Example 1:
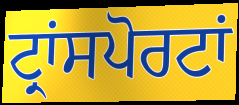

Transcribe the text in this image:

ਟ੍ਰਾਂਸਪੋਰਟਾਂ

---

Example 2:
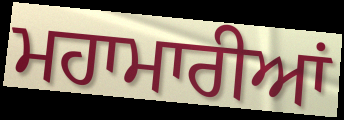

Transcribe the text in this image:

ਮਹਾਮਾਰੀਆਂ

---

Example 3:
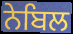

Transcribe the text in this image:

ਨੇਬਿਲ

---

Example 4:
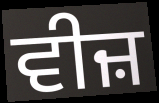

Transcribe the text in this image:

ਵੀਜ਼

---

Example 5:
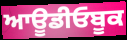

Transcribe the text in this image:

ਆਊਡੀਓਬੂਕ